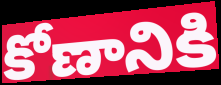
కోణానికి